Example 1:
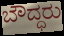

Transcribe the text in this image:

ಬೌದ್ಧರು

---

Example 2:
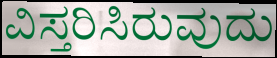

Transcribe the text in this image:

ವಿಸ್ತರಿಸಿರುವುದು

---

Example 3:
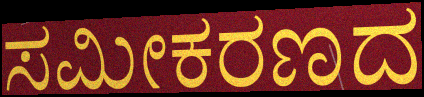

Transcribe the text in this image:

ಸಮೀಕರಣದ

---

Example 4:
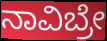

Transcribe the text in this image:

ನಾವಿಬ್ರೇ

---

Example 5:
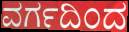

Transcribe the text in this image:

ವರ್ಗದಿಂದ